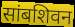
सांबशिवन